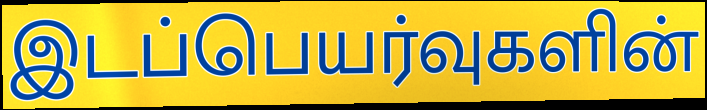
இடப்பெயர்வுகளின்